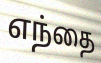
எந்தை